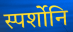
स्पर्शोनि